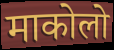
माकोलो